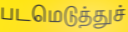
படமெடுத்துச்